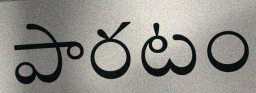
పారటం